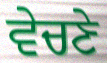
ਵੇਚਣੇ